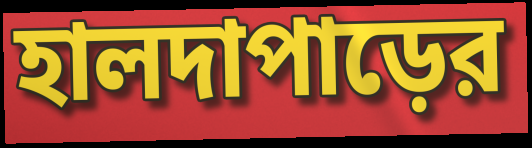
হালদাপাড়ের